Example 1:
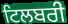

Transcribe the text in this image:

ਟਿਲਬਰੀ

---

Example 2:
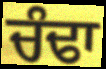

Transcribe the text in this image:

ਚੰਢਾ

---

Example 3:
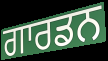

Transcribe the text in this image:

ਗਾਰਡਨ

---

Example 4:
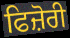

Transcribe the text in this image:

ਫਿਜ਼ੋਰੀ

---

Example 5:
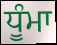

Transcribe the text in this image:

ਧੂੰਮਾ